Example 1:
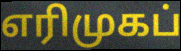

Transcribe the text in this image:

எரிமுகப்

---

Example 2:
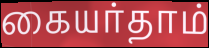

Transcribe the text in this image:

கையர்தாம்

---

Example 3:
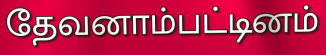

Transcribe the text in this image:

தேவனாம்பட்டினம்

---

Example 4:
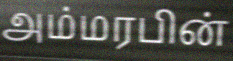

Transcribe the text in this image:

அம்மரபின்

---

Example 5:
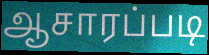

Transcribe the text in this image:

ஆசாரப்படி